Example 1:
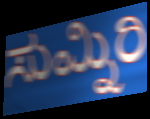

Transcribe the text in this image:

ಸುಮ್ನಿರಿ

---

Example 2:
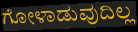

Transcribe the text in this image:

ಗೋಳಾಡುವುದಿಲ್ಲ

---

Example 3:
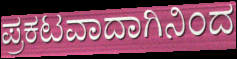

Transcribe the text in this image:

ಪ್ರಕಟವಾದಾಗಿನಿಂದ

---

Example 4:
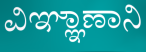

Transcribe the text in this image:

ವಿಞ್ಞಾಣಾನಿ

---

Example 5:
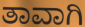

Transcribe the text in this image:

ತಾವಾಗಿ